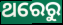
ଥରେରୁ